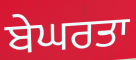
ਬੇਘਰਤਾ